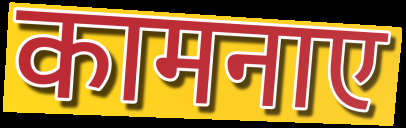
कामनाए